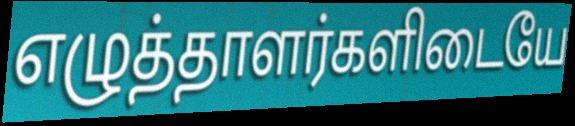
எழுத்தாளர்களிடையே